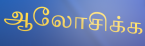
ஆலோசிக்க